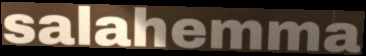
salahemma